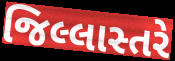
જિલ્લાસ્તરે